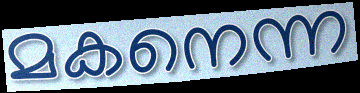
മകനെന്ന